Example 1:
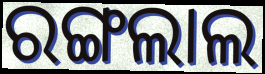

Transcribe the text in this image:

ରଙ୍ଗଲାଲ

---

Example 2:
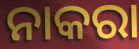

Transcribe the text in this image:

ନାକରା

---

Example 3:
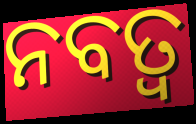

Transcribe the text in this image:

ନବତ୍ଵ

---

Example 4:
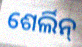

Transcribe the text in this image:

ଶେର୍ଲିନ୍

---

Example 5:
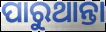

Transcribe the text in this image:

ପାରୁଥାନ୍ତା